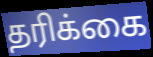
தரிக்கை